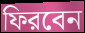
ফিরবেন